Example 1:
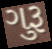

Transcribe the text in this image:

ગુરૂ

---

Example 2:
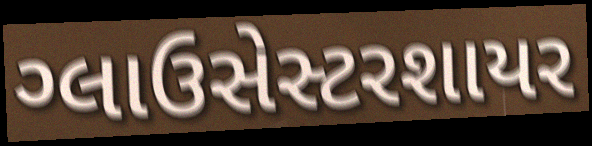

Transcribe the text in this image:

ગ્લાઉસેસ્ટરશાયર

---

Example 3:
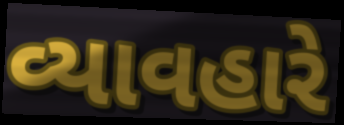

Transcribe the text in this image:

વ્યાવહારે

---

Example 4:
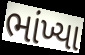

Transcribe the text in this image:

ભાંખ્યા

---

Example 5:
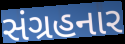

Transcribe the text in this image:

સંગ્રહનાર